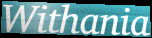
Withania